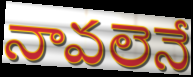
నావలెనే